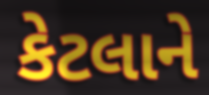
કેટલાને